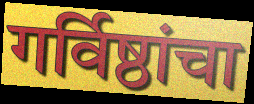
गर्विष्ठांचा